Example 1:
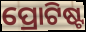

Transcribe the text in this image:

ପ୍ରୋଟିଷ୍ଟ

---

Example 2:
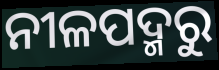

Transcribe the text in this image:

ନୀଳପଦ୍ମରୁ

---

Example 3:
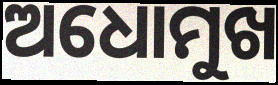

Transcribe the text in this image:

ଅଧୋମୁଖ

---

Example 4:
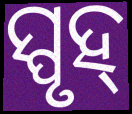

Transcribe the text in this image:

ସ୍ପୃହ୍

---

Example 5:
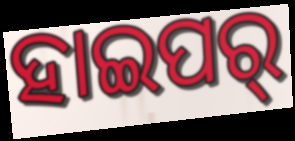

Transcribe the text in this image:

ହାଇପର୍